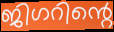
ജിഗറിന്റെ